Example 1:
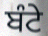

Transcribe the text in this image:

ਬੰਟੇ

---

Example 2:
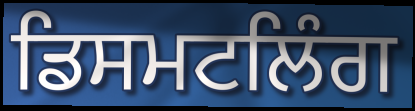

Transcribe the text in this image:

ਡਿਸਮਟਲਿੰਗ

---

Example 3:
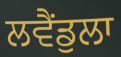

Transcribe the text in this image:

ਲਵੈਂਡੁਲਾ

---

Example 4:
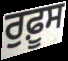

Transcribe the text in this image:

ਰੁਫ਼ੂਸ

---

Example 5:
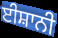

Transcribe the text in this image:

ਈਸ਼ਾਨੀ